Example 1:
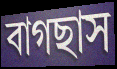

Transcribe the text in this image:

বাগছাস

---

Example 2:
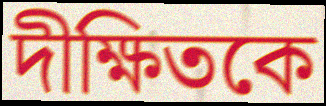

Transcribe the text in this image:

দীক্ষিতকে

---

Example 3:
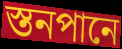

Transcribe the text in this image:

স্তনপানে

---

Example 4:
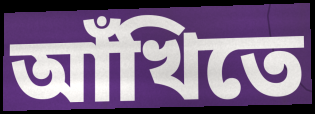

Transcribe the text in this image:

আঁখিতে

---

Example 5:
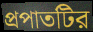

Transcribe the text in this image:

প্রপাতটির